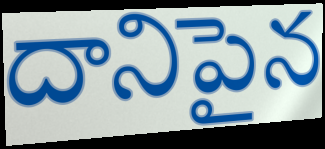
దానిపైన